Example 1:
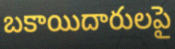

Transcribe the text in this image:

బకాయిదారులపై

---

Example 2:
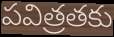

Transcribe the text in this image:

పవిత్రతకు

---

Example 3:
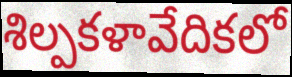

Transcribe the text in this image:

శిల్పకళావేదికలో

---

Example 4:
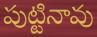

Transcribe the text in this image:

పుట్టినావు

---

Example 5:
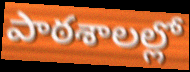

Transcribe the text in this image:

పాఠశాలల్లో